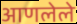
आणलेले